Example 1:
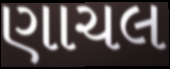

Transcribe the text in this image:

ણાચલ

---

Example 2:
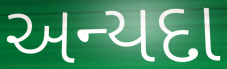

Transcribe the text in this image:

અન્યદા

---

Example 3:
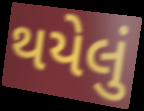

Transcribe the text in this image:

થયેલું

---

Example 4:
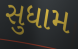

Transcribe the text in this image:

સુધામ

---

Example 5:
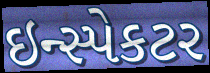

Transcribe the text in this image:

ઇન્સ્પેકટર